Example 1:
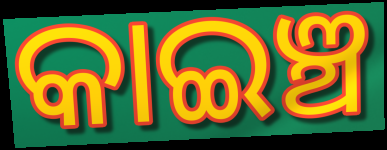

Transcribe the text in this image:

କାଇଞ୍ଚ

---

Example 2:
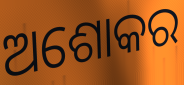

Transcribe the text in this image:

ଅଶୋକର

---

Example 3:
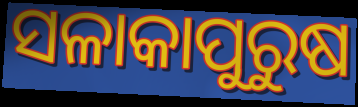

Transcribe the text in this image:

ସଳାକାପୁରୁଷ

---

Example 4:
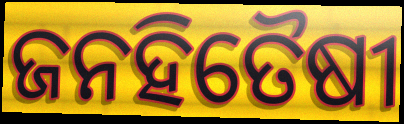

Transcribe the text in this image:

ଜନହିତୈଷୀ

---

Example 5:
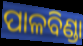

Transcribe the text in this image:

ପାଳବିଣ୍ଡା